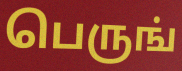
பெருங்